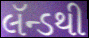
લૅન્ડથી